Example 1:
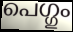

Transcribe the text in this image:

പെഗ്ഗും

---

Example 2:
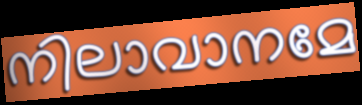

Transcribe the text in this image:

നിലാവാനമേ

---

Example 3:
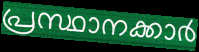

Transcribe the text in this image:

പ്രസ്ഥാനക്കാർ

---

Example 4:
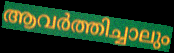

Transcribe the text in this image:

ആവർത്തിച്ചാലും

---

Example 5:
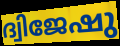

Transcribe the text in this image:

ദ്വിജേഷു